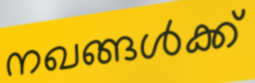
നഖങ്ങൾക്ക്